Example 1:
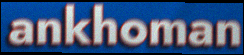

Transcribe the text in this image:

ankhoman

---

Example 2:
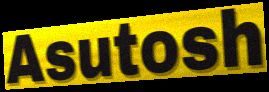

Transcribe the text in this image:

Asutosh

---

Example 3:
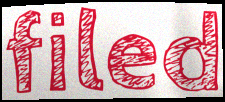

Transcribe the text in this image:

filed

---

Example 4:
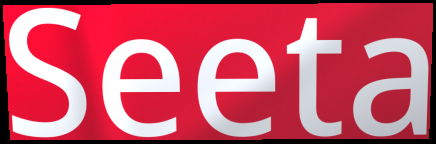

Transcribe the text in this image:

Seeta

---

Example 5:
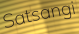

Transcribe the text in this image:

Satsangi